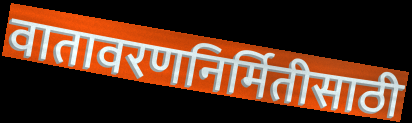
वातावरणनिर्मितीसाठी